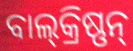
ବାଲ୍‍କ୍ରିଷ୍ଣନ୍